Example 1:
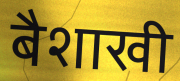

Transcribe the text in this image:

बैशाखी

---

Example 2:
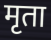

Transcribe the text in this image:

मृता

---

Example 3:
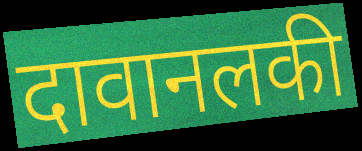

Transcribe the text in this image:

दावानलकी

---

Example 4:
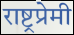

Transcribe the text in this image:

राष्ट्रप्रेमी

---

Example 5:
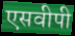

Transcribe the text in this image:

एसवीपी